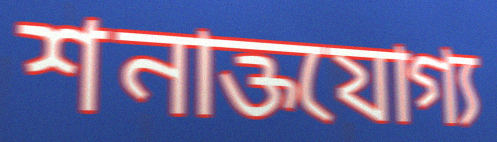
শনাক্তযোগ্য